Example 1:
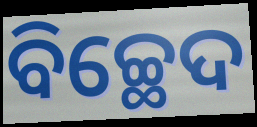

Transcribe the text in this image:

ବିଚ୍ଛେଦ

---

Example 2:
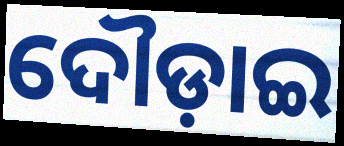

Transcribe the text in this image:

ଦୌଡ଼ାଇ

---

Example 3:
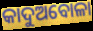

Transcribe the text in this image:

କାଦୁଅବୋଳା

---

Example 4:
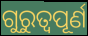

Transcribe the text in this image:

ଗୁରୁତ୍ୱପୂର୍ଣ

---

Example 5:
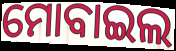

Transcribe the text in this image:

ମୋବାଇଲ